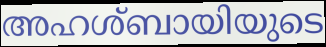
അഹശ്ബായിയുടെ